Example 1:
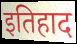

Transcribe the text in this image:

इतिहाद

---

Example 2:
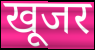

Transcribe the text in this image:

खूजर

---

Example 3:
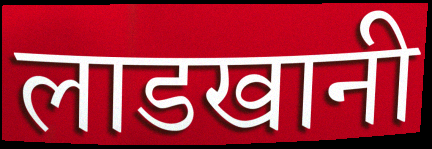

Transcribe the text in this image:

लाडखानी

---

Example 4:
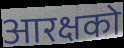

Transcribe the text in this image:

आरक्षको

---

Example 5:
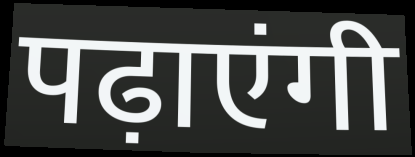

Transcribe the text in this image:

पढ़ाएंगी